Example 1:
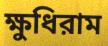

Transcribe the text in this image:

ক্ষুধিরাম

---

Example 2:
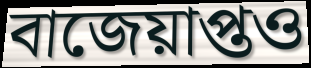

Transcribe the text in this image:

বাজেয়াপ্তও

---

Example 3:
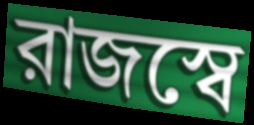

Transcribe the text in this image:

রাজস্বে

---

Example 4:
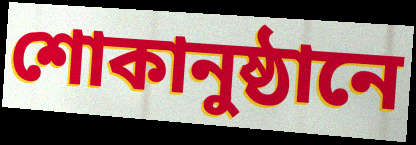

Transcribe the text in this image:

শোকানুষ্ঠানে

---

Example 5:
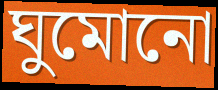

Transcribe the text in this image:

ঘুমোনো